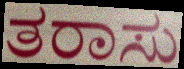
ತರಾಸು